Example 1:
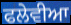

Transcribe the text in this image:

ਫਲੇਵੀਆ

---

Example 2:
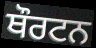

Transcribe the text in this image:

ਥੌਰਟਨ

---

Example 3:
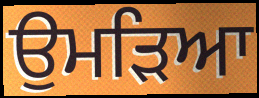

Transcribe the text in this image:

ਉਮੜਿਆ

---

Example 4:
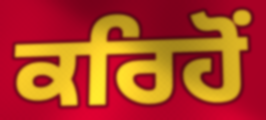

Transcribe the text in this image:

ਕਰਿਹੋਂ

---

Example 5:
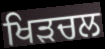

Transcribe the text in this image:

ਖਿੜਚਲ